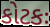
કોટકઃ